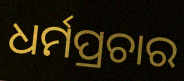
ଧର୍ମପ୍ରଚାର